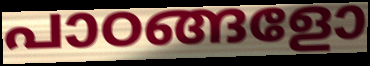
പാഠങ്ങളോ